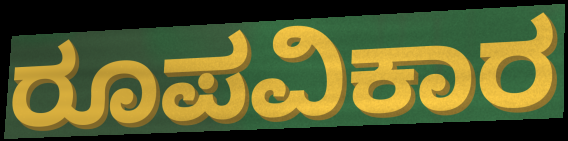
ರೂಪವಿಕಾರ